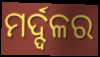
ମର୍ଦ୍ଦଳର